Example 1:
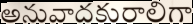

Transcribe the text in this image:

అనువాదకురాలిగా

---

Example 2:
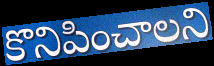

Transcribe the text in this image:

కొనిపించాలని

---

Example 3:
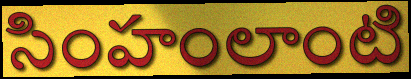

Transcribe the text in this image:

సింహంలాంటి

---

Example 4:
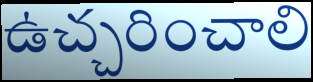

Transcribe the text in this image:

ఉచ్చరించాలి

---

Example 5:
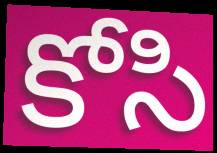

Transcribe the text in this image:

కోసి